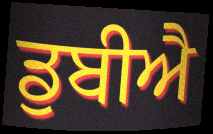
ਡੁਬੀਐ